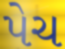
પેચ